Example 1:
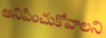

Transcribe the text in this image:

అనిపించుకోవాలని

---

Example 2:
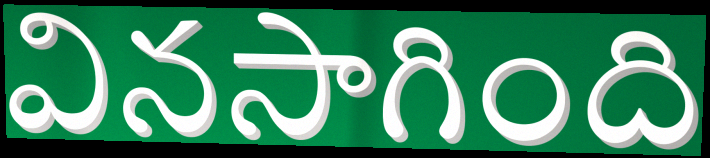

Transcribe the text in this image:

వినసాగింది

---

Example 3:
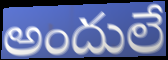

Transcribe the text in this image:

అందులే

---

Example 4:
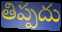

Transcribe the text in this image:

తిప్పదు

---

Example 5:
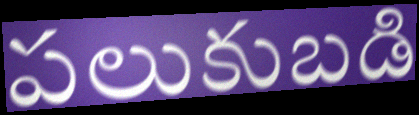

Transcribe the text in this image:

పలుకుబడి